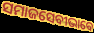
ସମାଜସେବୀଭାବେ